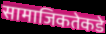
सामाजिकतेकडे